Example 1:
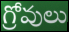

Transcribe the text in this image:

గ్రోవులు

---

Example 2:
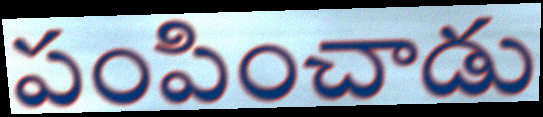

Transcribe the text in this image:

పంపించాడు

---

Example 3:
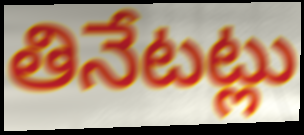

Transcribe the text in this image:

తినేటట్లు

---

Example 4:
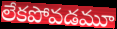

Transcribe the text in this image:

లేకపోవడమూ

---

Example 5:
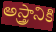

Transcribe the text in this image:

అస్త్రానికి